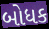
બોધક